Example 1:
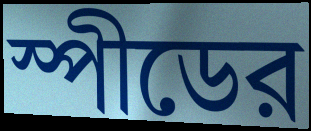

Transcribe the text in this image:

স্পীডের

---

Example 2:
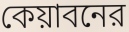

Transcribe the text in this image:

কেয়াবনের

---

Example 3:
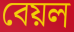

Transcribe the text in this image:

বেয়ল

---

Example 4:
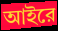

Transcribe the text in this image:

আইরে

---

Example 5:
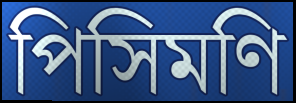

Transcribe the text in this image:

পিসিমণি